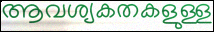
ആവശ്യകതകളുള്ള